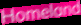
Homeland